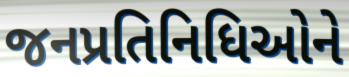
જનપ્રતિનિધિઓને